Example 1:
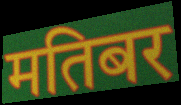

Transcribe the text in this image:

मतिबर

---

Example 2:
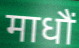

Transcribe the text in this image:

माधौं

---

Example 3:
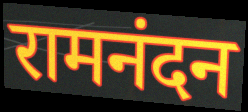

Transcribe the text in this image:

रामनंदन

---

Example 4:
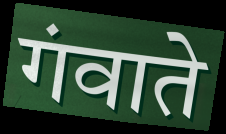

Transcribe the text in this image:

गंवाते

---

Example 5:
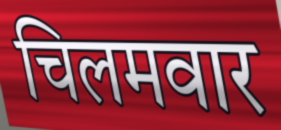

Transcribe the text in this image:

चिलमवार